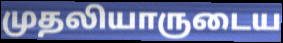
முதலியாருடைய